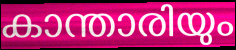
കാന്താരിയും